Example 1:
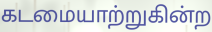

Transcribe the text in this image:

கடமையாற்றுகின்ற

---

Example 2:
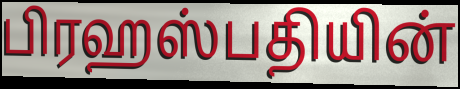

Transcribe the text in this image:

பிரஹஸ்பதியின்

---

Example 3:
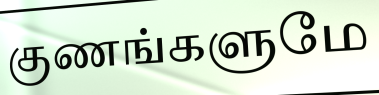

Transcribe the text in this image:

குணங்களுமே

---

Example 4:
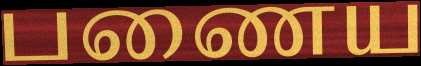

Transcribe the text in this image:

பணைய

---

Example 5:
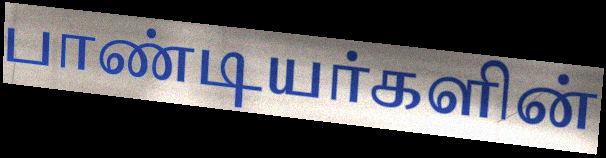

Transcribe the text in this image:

பாண்டியர்களின்